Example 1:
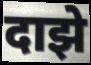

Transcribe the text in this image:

दाझे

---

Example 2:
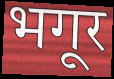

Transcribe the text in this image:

भगूर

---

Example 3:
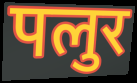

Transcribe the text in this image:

पलुर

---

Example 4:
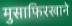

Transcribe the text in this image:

मुसाफिरखाने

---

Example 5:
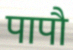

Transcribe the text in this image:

पापौ